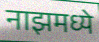
नाझमध्ये